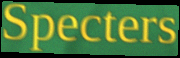
Specters